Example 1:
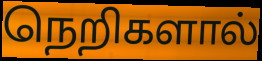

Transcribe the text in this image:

நெறிகளால்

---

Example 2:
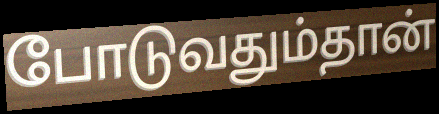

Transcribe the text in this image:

போடுவதும்தான்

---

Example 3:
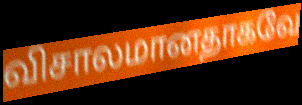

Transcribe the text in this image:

விசாலமானதாகவே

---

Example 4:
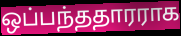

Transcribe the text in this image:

ஒப்பந்ததாரராக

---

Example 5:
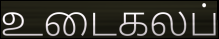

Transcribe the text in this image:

உடைகலப்